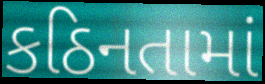
કઠિનતામાં